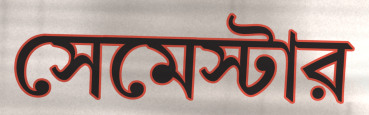
সেমেস্টার